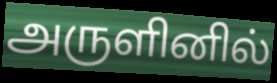
அருளினில்